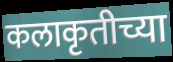
कलाकृतीच्या